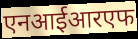
एनआईआरएफ